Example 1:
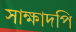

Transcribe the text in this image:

সাক্ষাদপি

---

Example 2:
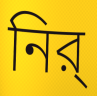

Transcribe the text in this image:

নির্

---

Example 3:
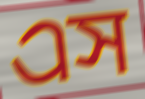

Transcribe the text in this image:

এস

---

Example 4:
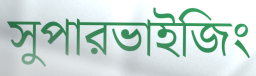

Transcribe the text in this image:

সুপারভাইজিং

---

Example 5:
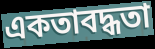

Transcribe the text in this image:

একতাবদ্ধতা